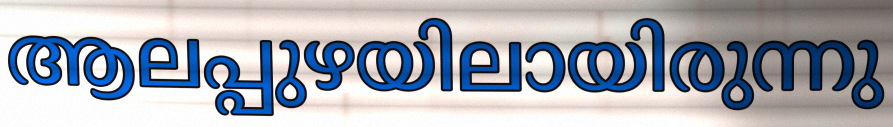
ആലപ്പുഴയിലായിരുന്നു